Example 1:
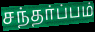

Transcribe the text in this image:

சந்தர்ப்பம்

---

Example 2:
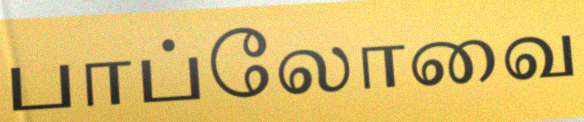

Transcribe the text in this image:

பாப்லோவை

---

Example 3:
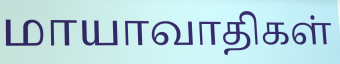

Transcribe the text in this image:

மாயாவாதிகள்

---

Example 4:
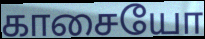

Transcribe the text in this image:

காசையோ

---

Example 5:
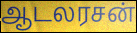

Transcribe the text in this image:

ஆடலரசன்